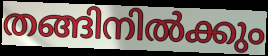
തങ്ങിനിൽക്കും